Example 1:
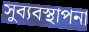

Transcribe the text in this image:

সুব্যবস্থাপনা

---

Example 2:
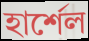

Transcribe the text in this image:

হার্শেল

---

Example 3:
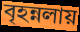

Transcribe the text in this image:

বৃহন্নলায়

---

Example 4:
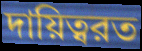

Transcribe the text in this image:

দায়িত্বরত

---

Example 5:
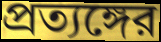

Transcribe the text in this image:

প্রত্যঙ্গের